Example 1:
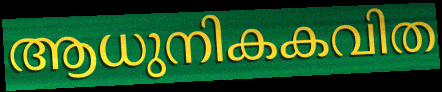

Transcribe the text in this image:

ആധുനികകവിത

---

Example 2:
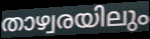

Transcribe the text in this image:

താഴ്വരയിലും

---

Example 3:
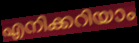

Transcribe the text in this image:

എനിക്കറിയാം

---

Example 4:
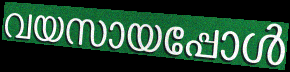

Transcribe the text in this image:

വയസായപ്പോൾ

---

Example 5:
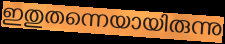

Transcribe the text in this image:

ഇതുതന്നെയായിരുന്നു